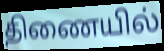
திணையில்